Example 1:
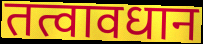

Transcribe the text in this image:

तत्‍वावधान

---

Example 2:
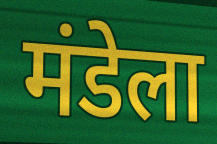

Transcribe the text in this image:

मंडेला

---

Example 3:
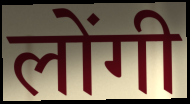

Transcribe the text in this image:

लोंगी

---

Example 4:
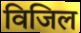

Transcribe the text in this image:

विजिल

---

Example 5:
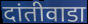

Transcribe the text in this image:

दांतीवाडा